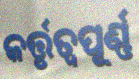
କର୍ତ୍ତୃତ୍ୱପୂର୍ଣ୍ଣ